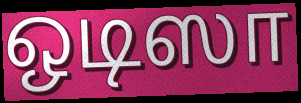
ஒடிஸா